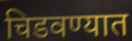
चिडवण्यात